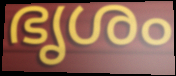
ഭൃശം